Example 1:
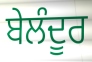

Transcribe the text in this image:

ਬੇਲੰਦੂਰ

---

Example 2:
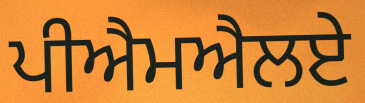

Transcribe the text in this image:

ਪੀਐਮਐਲਏ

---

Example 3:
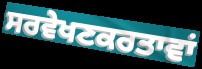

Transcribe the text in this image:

ਸਰਵੇਖਣਕਰਤਾਵਾਂ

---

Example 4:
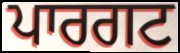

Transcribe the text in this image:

ਪਾਰਗਟ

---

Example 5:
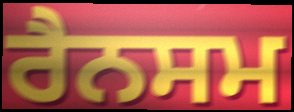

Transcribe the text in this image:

ਰੈਨਸਮ